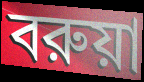
বরুয়া